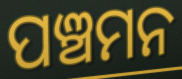
ପଞ୍ଚମନ